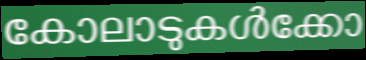
കോലാടുകൾക്കോ